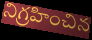
నిగ్రహించిన